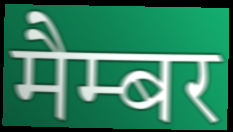
मैम्बर